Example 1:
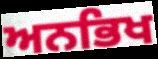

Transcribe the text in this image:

ਅਨਭਿਖ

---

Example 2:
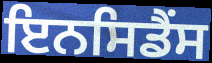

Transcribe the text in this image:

ਇਨਸਿਡੈਂਸ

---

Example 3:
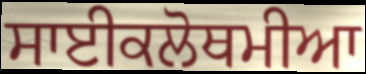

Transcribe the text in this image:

ਸਾਈਕਲੋਥਮੀਆ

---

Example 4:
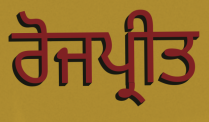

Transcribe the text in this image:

ਰੋਜਪ੍ਰੀਤ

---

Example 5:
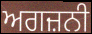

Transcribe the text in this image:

ਅਗਜ਼ਨੀ